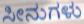
ಸೀನುಗಳು